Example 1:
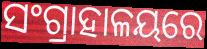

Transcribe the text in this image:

ସଂଗ୍ରାହାଳୟରେ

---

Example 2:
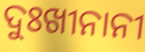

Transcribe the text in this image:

ଦୁଃଖୀନାନୀ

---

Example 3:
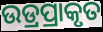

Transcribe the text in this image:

ଉଡ୍ରପ୍ରାକୃତ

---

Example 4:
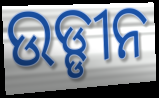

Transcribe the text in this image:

ଉଡ୍ଡୀନ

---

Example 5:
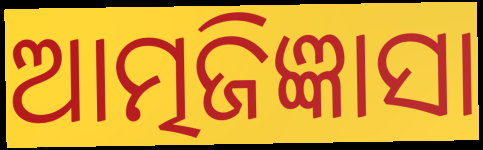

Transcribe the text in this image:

ଆତ୍ମଜିଜ୍ଞାସା